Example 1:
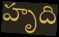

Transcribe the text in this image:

హృది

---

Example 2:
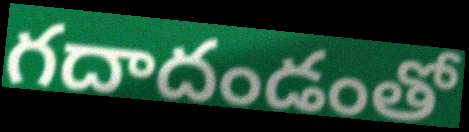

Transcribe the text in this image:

గదాదండంతో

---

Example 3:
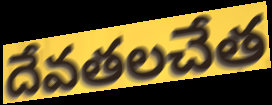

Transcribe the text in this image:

దేవతలచేత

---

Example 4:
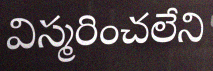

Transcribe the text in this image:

విస్మరించలేని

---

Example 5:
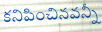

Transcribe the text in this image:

కనిపించినవన్నీ